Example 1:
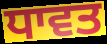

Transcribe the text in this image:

ਧਾਵਤ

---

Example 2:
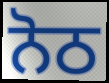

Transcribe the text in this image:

ਨੋਠ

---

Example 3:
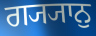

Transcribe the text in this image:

ਗ੍ਯ੍ਯਾਨੁ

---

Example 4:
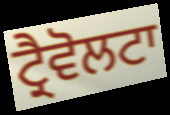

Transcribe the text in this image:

ਟ੍ਰੈਵੋਲਟਾ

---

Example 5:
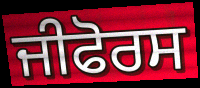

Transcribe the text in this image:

ਜੀਫੋਰਸ